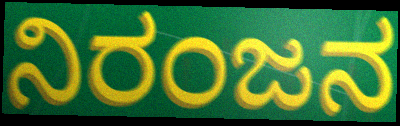
ನಿರಂಜನ